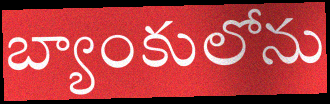
బ్యాంకులోను